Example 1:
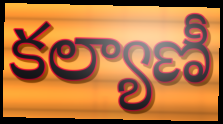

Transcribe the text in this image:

కల్యాణీ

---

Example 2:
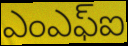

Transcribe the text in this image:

ఎంఎఫ్ఐ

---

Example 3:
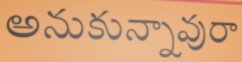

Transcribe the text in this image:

అనుకున్నావురా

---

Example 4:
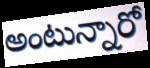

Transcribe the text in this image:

అంటున్నారో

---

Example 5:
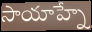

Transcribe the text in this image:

సాయాహ్నే